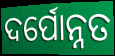
ଦର୍ପୋନ୍ନତ